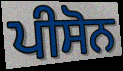
ਪੀਸੋਨ